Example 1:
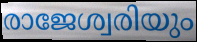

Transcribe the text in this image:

രാജേശ്വരിയും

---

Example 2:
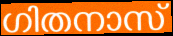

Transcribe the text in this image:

ഗിതനാസ്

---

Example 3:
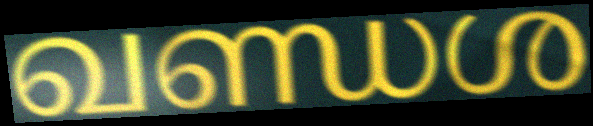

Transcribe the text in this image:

ഖണ്ഡശ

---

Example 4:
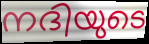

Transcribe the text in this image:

നദിയുടെ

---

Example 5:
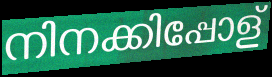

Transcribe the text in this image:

നിനക്കിപ്പോള്